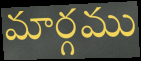
మార్గము